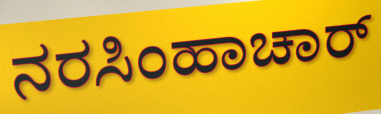
ನರಸಿಂಹಾಚಾರ್